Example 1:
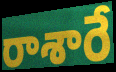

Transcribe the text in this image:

రాశారే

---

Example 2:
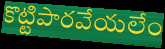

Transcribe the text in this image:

కొట్టిపారవేయలేం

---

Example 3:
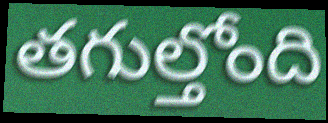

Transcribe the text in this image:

తగుల్తోంది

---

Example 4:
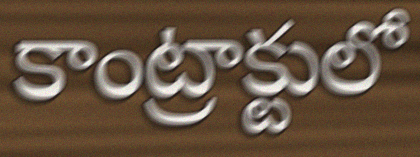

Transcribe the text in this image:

కాంట్రాక్టులో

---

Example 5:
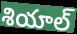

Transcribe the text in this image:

శియాల్